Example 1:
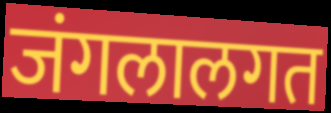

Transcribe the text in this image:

जंगलालगत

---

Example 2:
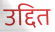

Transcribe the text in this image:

उद्दित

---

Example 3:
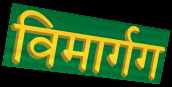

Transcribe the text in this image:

विमार्गग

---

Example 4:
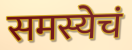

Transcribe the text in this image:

समस्येचं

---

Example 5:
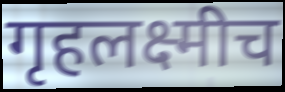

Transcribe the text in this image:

गृहलक्ष्मीच